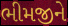
ભીમજીને